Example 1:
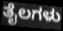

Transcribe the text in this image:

ತೈಲಗಳು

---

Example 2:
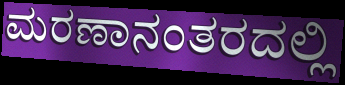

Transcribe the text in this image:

ಮರಣಾನಂತರದಲ್ಲಿ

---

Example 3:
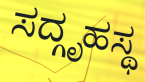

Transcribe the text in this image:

ಸದ್ಗೃಹಸ್ಥ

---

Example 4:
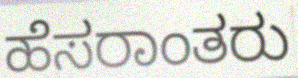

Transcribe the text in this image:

ಹೆಸರಾಂತರು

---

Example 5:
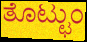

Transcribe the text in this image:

ತೊಟ್ಟುಂ